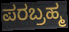
ಪರಬ್ರಹ್ಮ